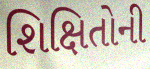
શિક્ષિતોની